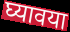
घ्यावया